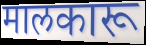
मालकारू